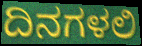
ದಿನಗಳಲಿ